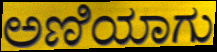
ಅಣಿಯಾಗು